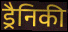
ड्रैनिकी